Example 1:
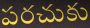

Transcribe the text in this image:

పరచుకు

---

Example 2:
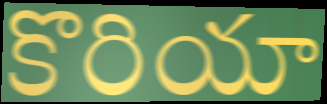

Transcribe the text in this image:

కొరియా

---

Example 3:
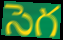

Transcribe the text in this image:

సెగ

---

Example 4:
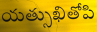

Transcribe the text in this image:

యత్సుఖితోపి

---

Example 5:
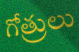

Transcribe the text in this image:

గోత్రులు